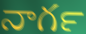
నాగర్‍